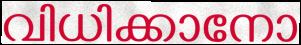
വിധിക്കാനോ